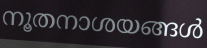
നൂതനാശയങ്ങൾ